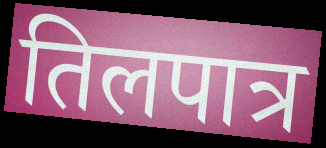
तिलपात्र